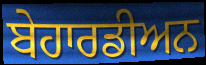
ਬੇਹਾਰਡੀਅਨ